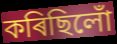
কৰিছিলোঁ